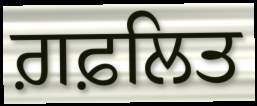
ਗ਼ਫ਼ਲਿਤ